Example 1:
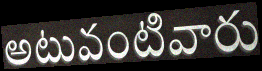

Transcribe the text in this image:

అటువంటివారు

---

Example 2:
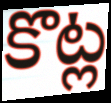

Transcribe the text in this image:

కొట్ల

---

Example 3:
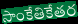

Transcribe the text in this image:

సాంకేతికేతర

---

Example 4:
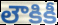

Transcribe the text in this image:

లౌకికీ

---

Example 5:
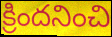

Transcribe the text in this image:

క్రిందనించి